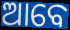
ଆବେ